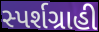
સ્પર્શગ્રાહી